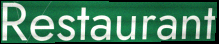
Restaurant